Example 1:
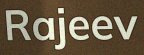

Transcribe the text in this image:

Rajeev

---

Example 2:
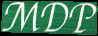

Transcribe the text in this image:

MDP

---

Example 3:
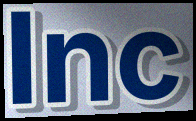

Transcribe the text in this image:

Inc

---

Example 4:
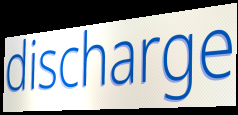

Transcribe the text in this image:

discharge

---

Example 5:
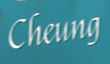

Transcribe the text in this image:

Cheung